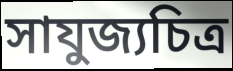
সাযুজ্যচিত্র